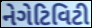
નેગેટિવિટી